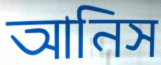
আনিস